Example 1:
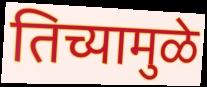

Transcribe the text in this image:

तिच्यामुळे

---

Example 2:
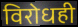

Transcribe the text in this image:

विरोधही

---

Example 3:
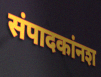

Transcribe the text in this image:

संपादकांनश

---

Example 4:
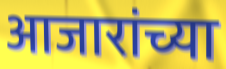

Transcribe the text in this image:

आजारांच्या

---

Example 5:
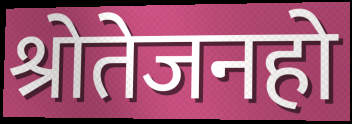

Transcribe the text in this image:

श्रोतेजनहो